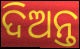
ଦିଅନ୍ତ